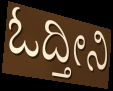
ಓದ್ತೀನಿ